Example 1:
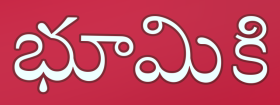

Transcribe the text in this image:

భూమికి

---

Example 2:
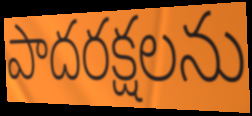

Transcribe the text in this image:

పాదరక్షలను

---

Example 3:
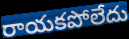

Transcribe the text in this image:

రాయకపోలేదు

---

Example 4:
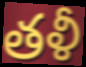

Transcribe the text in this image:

తళీ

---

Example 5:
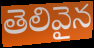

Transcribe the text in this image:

తెలివైన